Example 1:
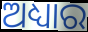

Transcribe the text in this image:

ଅଧ୍ୟାର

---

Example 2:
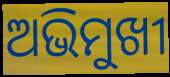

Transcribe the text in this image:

ଅଭିମୁଖୀ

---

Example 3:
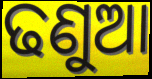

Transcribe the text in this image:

ଢଣୁଆ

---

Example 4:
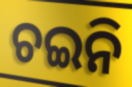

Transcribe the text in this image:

ଚଇନି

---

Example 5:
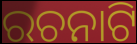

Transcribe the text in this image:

ରଚନାଟି